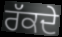
ਰੱਕਦੇ